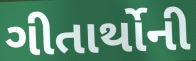
ગીતાર્થોની